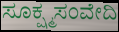
ಸೂಕ್ಷ್ಮಸಂವೇದಿ